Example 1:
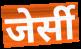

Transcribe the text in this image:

जेर्सी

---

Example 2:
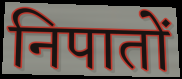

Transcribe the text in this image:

निपातों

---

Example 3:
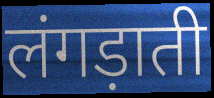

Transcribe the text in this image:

लंगड़ाती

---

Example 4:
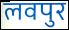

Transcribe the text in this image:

लवपुर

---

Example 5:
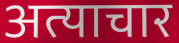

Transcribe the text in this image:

अत्‍याचार